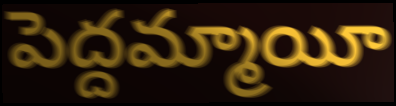
పెద్దమ్మాయీ